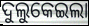
ଦୁଲୁକେଇଲା